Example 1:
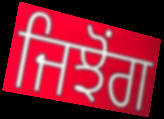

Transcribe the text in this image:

ਜਿਝੋਂਗ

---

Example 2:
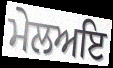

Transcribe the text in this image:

ਮੇਲਅਇ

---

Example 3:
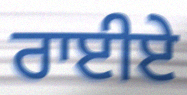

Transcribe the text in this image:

ਰਾਈਏ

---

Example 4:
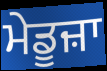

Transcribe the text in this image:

ਮੇਡੂਜ਼ਾ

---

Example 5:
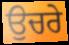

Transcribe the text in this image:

ਉਚਰੇ